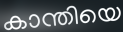
കാന്തിയെ